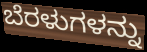
ಬೆರಳುಗಳನ್ನು